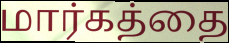
மார்கத்தை